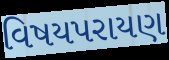
વિષયપરાયણ